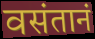
वसंतानं